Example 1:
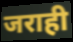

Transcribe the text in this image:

जराही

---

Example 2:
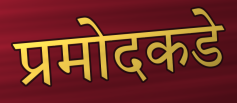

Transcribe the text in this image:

प्रमोदकडे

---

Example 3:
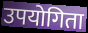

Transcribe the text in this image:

उपयोगिता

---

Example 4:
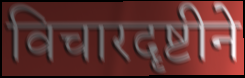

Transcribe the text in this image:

विचारदृष्टीने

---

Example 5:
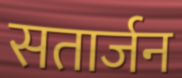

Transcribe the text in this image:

सतार्जन